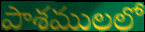
పాశములలో